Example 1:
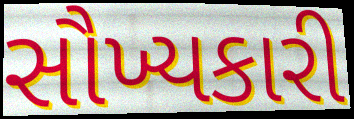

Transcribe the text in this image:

સૌખ્યકારી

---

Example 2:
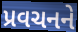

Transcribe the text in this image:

પ્રવચનને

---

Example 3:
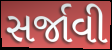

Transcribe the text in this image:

સર્જાવી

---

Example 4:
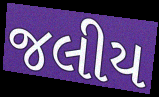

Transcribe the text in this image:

જલીય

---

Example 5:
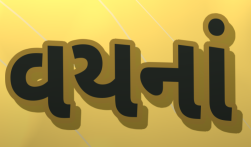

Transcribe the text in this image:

વયનાં